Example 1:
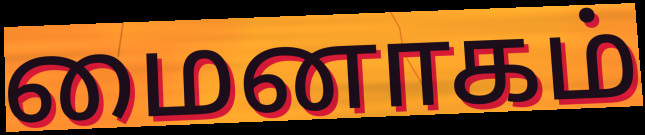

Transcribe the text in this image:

மைனாகம்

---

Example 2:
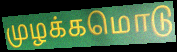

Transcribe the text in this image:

முழக்கமொடு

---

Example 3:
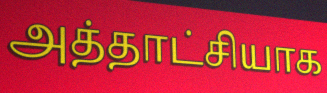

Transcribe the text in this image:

அத்தாட்சியாக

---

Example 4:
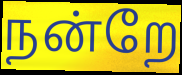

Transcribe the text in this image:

நன்றே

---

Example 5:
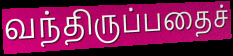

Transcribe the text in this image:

வந்திருப்பதைச்